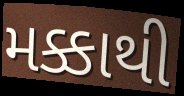
મક્કાથી